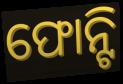
ଫୋନ୍ଟି